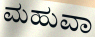
ಮಹುವಾ